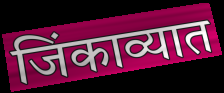
जिंकाव्यात